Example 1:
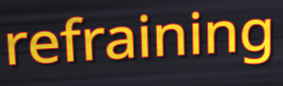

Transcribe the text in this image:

refraining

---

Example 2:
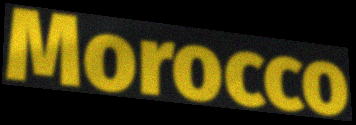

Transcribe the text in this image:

Morocco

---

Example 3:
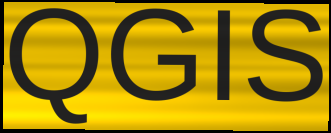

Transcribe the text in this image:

QGIS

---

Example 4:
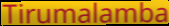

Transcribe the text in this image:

Tirumalamba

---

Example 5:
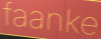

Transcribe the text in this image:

faanke